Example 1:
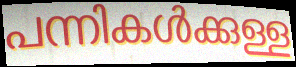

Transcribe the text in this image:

പന്നികൾക്കുള്ള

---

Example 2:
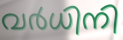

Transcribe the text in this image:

വർധിനി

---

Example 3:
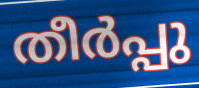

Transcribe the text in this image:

തീർപ്പു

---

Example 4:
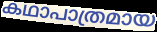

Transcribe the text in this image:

കഥാപാത്രമായ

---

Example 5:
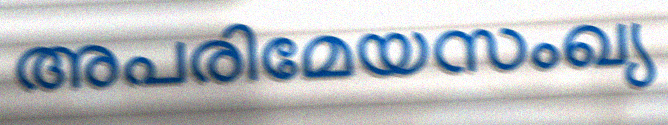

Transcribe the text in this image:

അപരിമേയസംഖ്യ